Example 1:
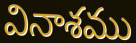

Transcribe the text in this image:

వినాశము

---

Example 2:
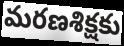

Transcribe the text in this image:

మరణశిక్షకు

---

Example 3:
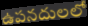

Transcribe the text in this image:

ఉపనదులలో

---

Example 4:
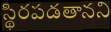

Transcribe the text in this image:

స్థిరపడతానని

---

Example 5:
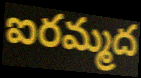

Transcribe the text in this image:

ఐరమ్మద